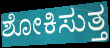
ಶೋಕಿಸುತ್ತ